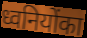
ध्वनियोंका